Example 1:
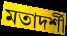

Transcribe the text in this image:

মতাদর্শী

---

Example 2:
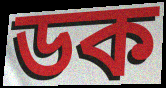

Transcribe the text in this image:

ডক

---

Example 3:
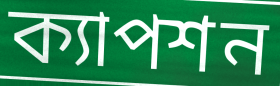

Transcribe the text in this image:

ক্যাপশন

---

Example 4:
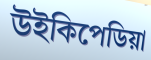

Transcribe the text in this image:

উইকিপেডিয়া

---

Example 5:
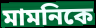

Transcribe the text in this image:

মামনিকে